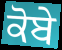
ਕੋਬੇ